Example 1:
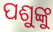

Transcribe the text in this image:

ପଶୁଙ୍କୁ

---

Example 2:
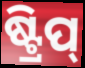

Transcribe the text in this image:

ଷ୍ଟ୍ରିପ୍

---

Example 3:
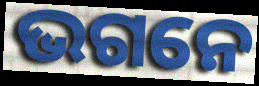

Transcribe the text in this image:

ଭଗନେ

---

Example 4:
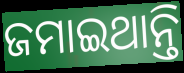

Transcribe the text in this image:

ଜମାଇଥାନ୍ତି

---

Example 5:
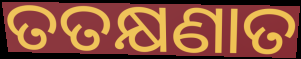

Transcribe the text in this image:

ତତକ୍ଷଣାତ